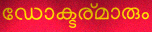
ഡോക്ടര്മാരും